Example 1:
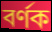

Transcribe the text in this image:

বর্ণক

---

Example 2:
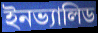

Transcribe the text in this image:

ইনভ্যালিড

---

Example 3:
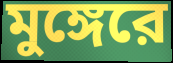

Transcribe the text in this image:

মুঙ্গেরে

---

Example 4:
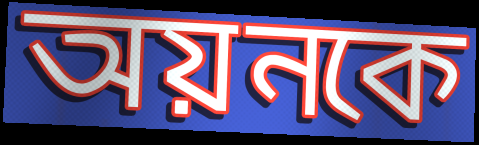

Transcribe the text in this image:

অয়নকে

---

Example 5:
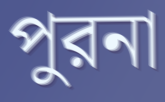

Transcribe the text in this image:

পুরনা